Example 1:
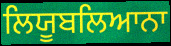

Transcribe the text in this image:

ਲਿਯੂਬਲਿਆਨਾ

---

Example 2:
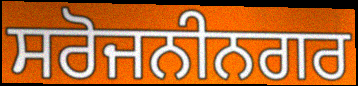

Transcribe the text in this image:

ਸਰੋਜਨੀਨਗਰ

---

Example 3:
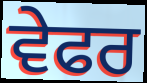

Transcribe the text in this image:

ਵੇਫਰ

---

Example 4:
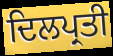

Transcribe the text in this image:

ਦਿਲਪ੍ਰਤੀ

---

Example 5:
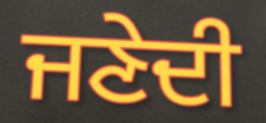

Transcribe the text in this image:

ਜਣੇਦੀ